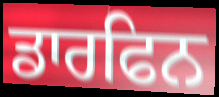
ਡਾਰਫਿਨ